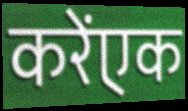
करेंएक